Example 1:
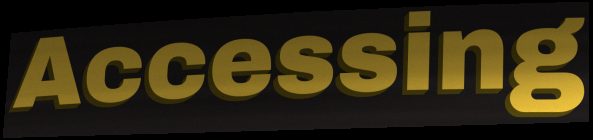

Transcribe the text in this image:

Accessing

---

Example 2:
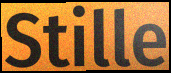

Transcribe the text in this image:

Stille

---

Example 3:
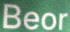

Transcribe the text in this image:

Beor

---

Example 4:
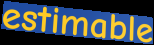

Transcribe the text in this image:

estimable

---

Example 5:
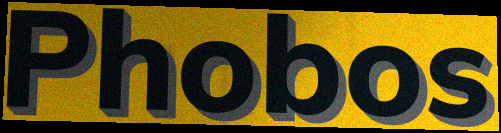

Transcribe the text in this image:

Phobos